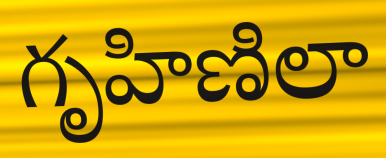
గృహిణిలా